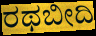
ರಥಬೀದಿ